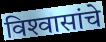
विश्‍वासांचे